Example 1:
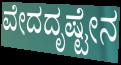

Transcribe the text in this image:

ವೇದದೃಷ್ಟೇನ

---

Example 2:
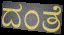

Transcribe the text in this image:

ದಂತೆ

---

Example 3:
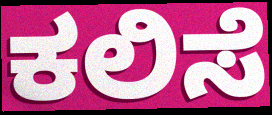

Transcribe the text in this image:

ಕಲಿಸೆ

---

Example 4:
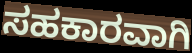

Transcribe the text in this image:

ಸಹಕಾರವಾಗಿ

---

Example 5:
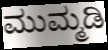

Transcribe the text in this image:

ಮುಮ್ಮಡಿ